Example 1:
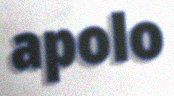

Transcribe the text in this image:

apolo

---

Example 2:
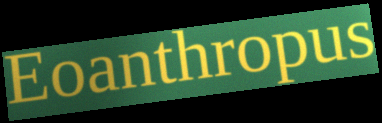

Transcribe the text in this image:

Eoanthropus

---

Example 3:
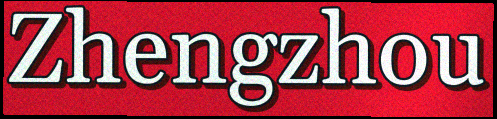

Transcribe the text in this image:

Zhengzhou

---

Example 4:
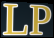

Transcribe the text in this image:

LP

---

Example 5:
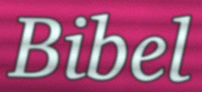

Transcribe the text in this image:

Bibel